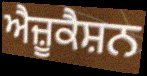
ਐਜ਼ੂਕੈਸ਼ਨ